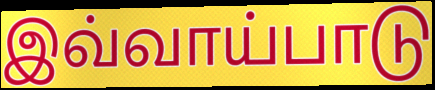
இவ்வாய்பாடு